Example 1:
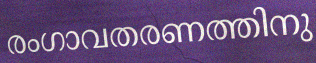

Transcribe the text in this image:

രംഗാവതരണത്തിനു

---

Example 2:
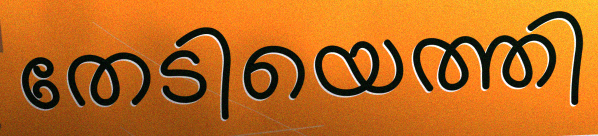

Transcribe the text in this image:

തേടിയെത്തി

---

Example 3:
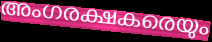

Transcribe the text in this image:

അംഗരക്ഷകരെയും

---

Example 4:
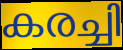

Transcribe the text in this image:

കരച്ചി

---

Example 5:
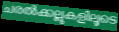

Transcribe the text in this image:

ചരൽക്കല്ലുകളിലൂടെ